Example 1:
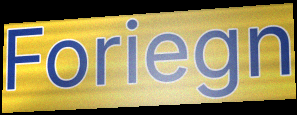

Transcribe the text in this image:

Foriegn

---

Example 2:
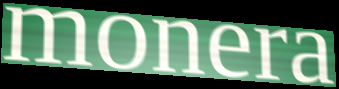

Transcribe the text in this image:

monera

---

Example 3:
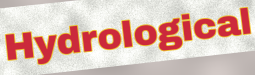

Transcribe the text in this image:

Hydrological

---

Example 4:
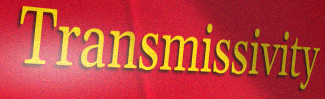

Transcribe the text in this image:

Transmissivity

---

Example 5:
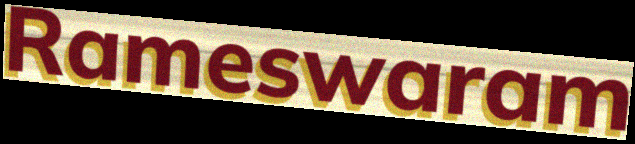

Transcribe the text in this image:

Rameswaram